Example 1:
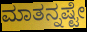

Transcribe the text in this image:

ಮಾತನ್ನಷ್ಟೇ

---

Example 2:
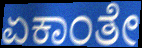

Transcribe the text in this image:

ಏಕಾಂತೇ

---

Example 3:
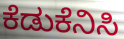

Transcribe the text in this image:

ಕೆಡುಕೆನಿಸಿ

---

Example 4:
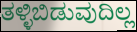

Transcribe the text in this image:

ತಳ್ಳಿಬಿಡುವುದಿಲ್ಲ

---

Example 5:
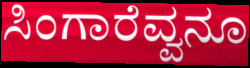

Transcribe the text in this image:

ಸಿಂಗಾರೆವ್ವನೂ